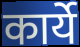
कार्ये